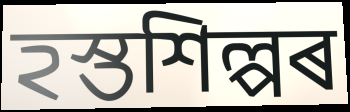
হস্তশিল্পৰ